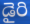
డైరి